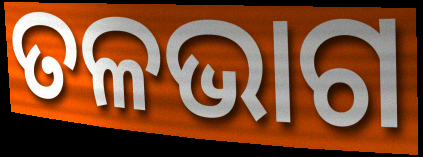
ତଳଭାଗ